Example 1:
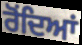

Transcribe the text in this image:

ਰੋਂਦਿਆਂ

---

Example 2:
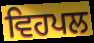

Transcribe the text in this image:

ਵਿਹਪਲ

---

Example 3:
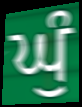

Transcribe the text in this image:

ਘੁੰ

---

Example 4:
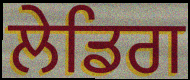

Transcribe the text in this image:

ਲੇਡਿਗ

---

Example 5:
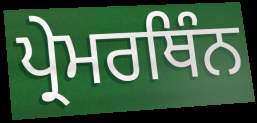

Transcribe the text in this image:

ਪ੍ਰੇਮਰਥਿੰਨ